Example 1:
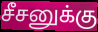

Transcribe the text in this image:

சீசனுக்கு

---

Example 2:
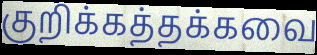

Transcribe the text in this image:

குறிக்கத்தக்கவை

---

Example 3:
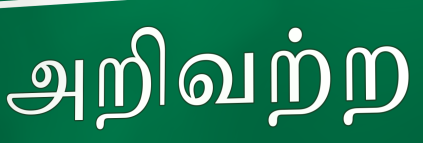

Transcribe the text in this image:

அறிவற்ற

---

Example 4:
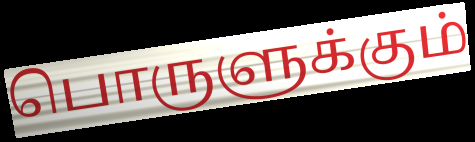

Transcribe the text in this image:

பொருளுக்கும்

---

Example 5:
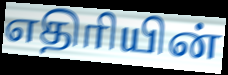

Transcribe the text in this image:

எதிரியின்